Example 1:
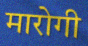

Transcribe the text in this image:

मारोगी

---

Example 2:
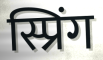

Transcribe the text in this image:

स्प्रिंग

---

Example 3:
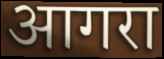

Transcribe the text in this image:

आगरा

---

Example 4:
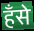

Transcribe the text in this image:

हँसे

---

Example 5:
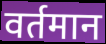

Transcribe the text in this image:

वर्तमान